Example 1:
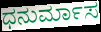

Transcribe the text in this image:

ಧನುರ್ಮಾಸ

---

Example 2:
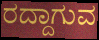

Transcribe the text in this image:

ರದ್ದಾಗುವ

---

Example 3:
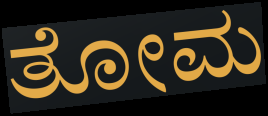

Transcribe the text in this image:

ತೋಮ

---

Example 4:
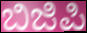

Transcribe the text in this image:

ಬಿಜಿಪಿ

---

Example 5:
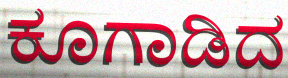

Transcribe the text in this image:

ಕೂಗಾಡಿದ